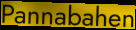
Pannabahen